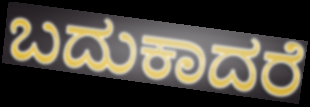
ಬದುಕಾದರೆ